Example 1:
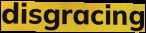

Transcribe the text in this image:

disgracing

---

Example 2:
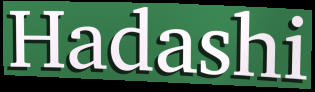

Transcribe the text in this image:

Hadashi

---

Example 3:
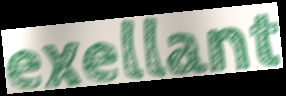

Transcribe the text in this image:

exellant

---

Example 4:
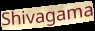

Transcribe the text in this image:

Shivagama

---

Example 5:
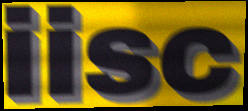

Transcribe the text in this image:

iisc